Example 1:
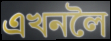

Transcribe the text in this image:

এখনলৈ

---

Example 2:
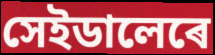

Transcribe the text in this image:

সেইডালেৰে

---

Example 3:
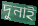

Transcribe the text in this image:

দুনাই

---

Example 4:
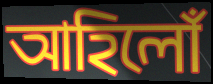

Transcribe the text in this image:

আহিলোঁ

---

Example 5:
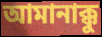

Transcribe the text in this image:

আমানাক্কু